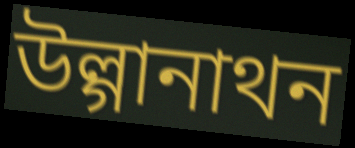
উল্গানাথন